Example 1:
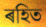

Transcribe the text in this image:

ৰহিত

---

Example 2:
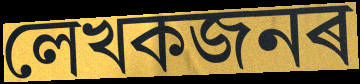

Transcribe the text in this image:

লেখকজনৰ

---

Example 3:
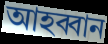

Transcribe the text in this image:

আহব্বান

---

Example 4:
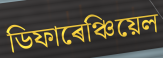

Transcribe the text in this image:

ডিফাৰেঞ্চিয়েল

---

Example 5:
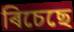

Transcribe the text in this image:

ৰিচেছে